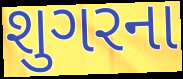
શુગરના